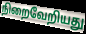
நிறைவேறியது